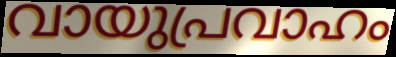
വായുപ്രവാഹം